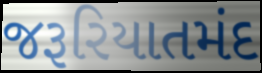
જરૂરિયાતમંદ